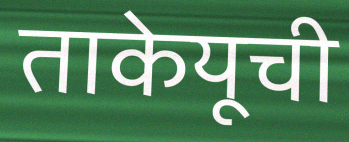
ताकेयूची